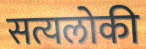
सत्यलोकी